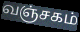
வஞ்சகம்